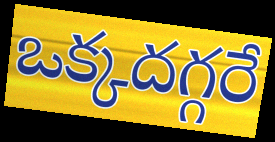
ఒక్కదగ్గరే